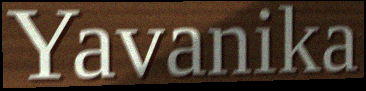
Yavanika